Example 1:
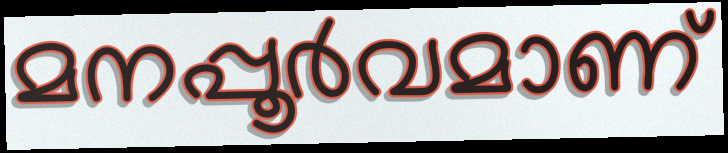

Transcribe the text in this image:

മനപ്പൂർവമാണ്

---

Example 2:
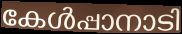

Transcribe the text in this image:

കേൾപ്പാനാടി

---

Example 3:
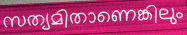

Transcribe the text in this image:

സത്യമിതാണെങ്കിലും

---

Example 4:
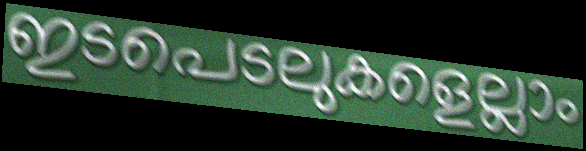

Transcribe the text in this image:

ഇടപെടലുകളെല്ലാം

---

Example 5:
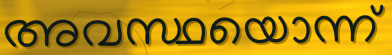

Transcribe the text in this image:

അവസ്ഥയൊന്ന്